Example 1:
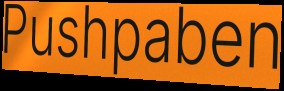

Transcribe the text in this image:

Pushpaben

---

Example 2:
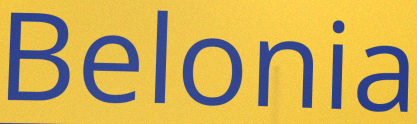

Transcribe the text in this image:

Belonia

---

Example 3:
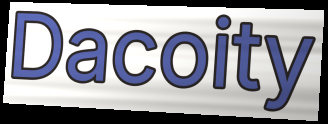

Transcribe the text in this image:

Dacoity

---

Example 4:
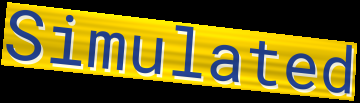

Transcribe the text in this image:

Simulated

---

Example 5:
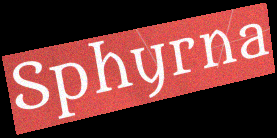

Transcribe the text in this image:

Sphyrna